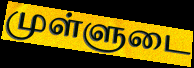
முள்ளுடை